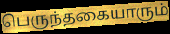
பெருந்தகையாரும்